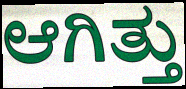
ಆಗಿತ್ತು